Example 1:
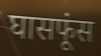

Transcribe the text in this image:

घासफूंस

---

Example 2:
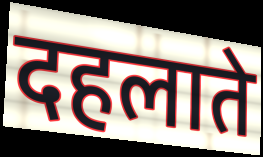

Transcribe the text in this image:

दहलाते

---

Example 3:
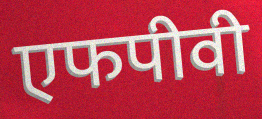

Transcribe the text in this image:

एफपीवी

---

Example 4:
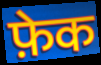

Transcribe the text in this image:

फ़ेक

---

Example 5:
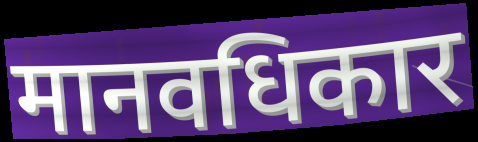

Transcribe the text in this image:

मानवधिकार